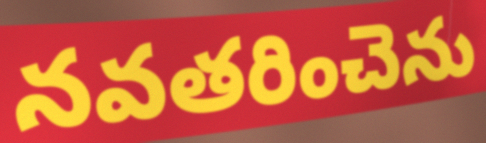
నవతరించెను